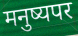
मनुष्यपर